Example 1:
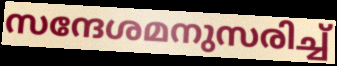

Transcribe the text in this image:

സന്ദേശമനുസരിച്ച്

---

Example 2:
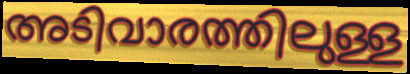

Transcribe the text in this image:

അടിവാരത്തിലുള്ള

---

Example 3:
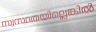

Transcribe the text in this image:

സ്വസ്ഥതയില്ലെങ്കിൽ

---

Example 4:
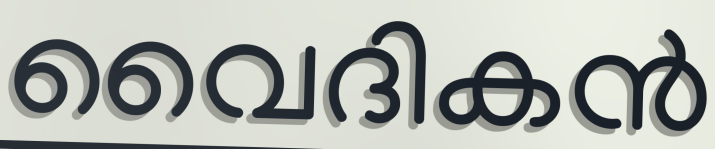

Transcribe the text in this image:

വൈദികൻ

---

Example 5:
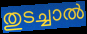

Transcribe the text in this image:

തുടച്ചാൽ